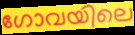
ഗോവയിലെ